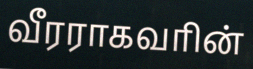
வீரராகவரின்